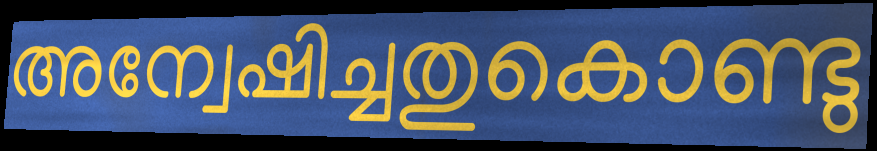
അന്വേഷിച്ചതുകൊണ്ടു